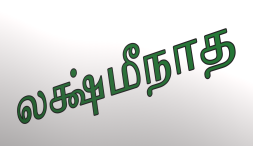
லக்ஷ்மீநாத